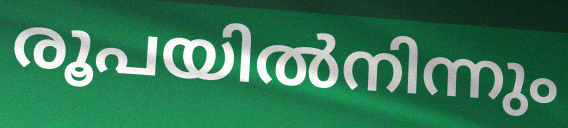
രൂപയിൽനിന്നും